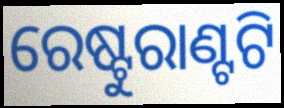
ରେଷ୍ଟୁରାଣ୍ଟଟି